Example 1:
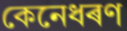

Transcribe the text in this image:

কেনেধৰণ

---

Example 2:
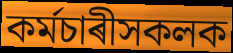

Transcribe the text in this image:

কৰ্মচাৰীসকলক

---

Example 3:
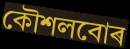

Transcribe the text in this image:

কৌশলবোৰ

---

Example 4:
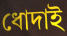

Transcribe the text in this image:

ধোদাই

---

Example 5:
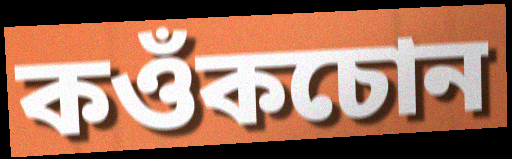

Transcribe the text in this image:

কওঁকচোন